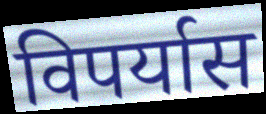
विपर्यास